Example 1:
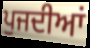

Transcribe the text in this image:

ਪੁਜਦੀਆਂ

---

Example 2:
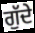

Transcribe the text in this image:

ਗੁੱਦੇ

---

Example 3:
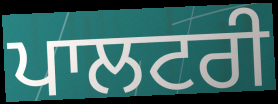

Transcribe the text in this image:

ਪਾਲਟਰੀ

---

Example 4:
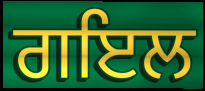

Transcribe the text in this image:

ਗਇਲ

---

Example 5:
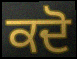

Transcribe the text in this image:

ਕਦੋ